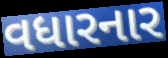
વધારનાર